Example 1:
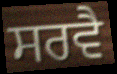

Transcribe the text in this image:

ਸਰਵੈ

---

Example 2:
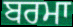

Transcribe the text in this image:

ਬਰਮਾ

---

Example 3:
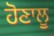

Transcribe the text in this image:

ਹੋਣਾਲੂ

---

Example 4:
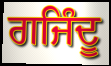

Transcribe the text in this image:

ਗਜਿੰਦੂ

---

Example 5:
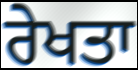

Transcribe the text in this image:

ਰੇਖਤਾ